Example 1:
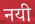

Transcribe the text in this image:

नयी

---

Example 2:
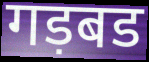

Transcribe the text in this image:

गड़बड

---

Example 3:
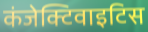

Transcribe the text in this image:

कंजेक्टिवाइटिस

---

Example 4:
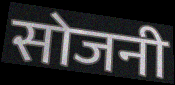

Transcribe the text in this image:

सोजनी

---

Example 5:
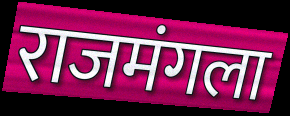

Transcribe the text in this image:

राजमंगला